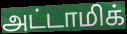
அட்டாமிக்